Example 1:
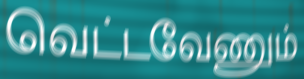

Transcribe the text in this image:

வெட்டவேணும்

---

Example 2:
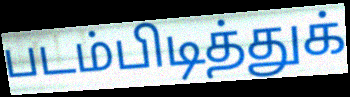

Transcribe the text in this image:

படம்பிடித்துக்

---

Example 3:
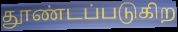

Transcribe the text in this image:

தூண்டப்படுகிற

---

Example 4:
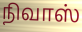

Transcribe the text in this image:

நிவாஸ்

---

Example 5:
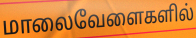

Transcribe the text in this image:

மாலைவேளைகளில்